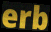
erb